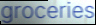
groceries